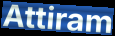
Attiram